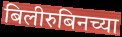
बिलीरुबिनच्या